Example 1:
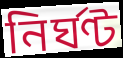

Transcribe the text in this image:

নির্ঘণ্ট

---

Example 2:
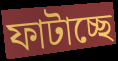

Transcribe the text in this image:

ফাটাচ্ছে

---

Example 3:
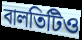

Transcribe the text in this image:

বালতিটিও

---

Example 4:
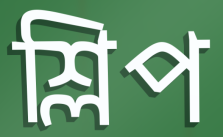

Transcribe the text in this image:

শ্লিপ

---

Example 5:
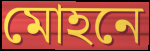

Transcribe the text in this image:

মোহনে